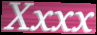
Xxxx